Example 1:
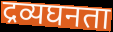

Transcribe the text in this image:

द्रव्यघनता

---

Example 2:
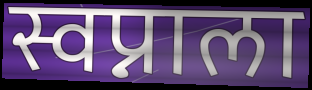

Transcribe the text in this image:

स्वप्नाला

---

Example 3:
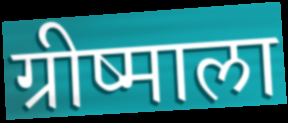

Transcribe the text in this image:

ग्रीष्माला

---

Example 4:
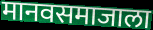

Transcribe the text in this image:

मानवसमाजाला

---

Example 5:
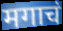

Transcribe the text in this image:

मगाचं